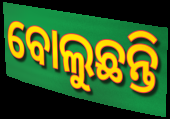
ବୋଲୁଛନ୍ତି